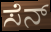
ಸೆನ್